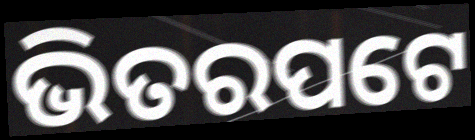
ଭିତରପଟେ